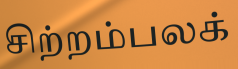
சிற்றம்பலக்